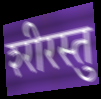
श्रीरस्तु